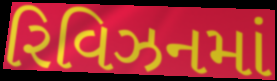
રિવિઝનમાં